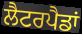
ਲੈਟਰਪੈਡਾਂ